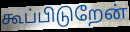
கூப்பிடுறேன்